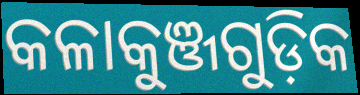
କଳାକୁଞ୍ଜଗୁଡ଼ିକ